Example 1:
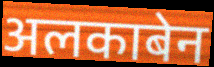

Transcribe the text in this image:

अलकाबेन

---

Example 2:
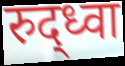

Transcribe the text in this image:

रुद्ध्वा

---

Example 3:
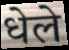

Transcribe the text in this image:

धेले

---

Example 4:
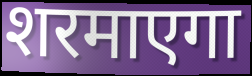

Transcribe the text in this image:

शरमाएगा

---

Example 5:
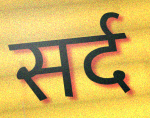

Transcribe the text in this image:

सर्द